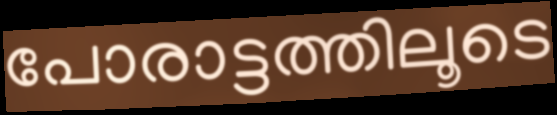
പോരാട്ടത്തിലൂടെ